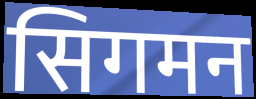
सिगमन